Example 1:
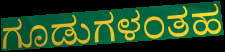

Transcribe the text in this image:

ಗೂಡುಗಳಂತಹ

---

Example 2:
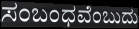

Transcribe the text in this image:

ಸಂಬಂಧವೆಂಬುದು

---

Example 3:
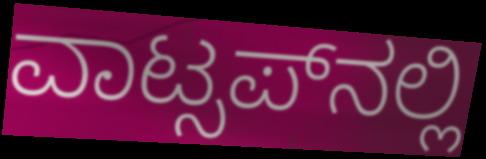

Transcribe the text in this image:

ವಾಟ್ಸಪ್‍ನಲ್ಲಿ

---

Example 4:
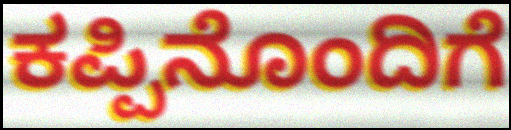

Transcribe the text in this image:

ಕಪ್ಪಿನೊಂದಿಗೆ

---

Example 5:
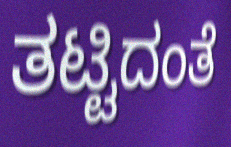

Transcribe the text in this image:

ತಟ್ಟಿದಂತೆ